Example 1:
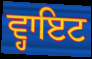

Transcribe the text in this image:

ਵ੍ਹਾਇਟ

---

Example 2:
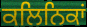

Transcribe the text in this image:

ਕਲਿਨਿਕਾਂ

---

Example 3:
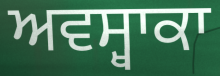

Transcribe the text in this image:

ਅਵਸ੍ਥਾਕਾ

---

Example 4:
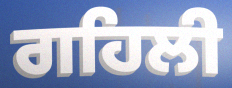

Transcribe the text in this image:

ਗਹਿਲੀ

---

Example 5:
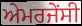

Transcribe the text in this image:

ਅੇਮਰਜੇਂਸੀ